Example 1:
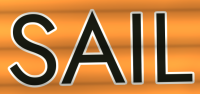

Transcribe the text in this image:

SAIL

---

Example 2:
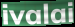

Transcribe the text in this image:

ivalai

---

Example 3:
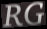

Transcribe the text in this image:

RG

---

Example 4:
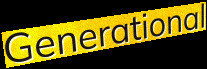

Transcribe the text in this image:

Generational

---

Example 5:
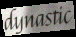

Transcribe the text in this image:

dynastic